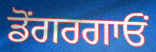
ਡੋਂਗਰਗਾਓਂ